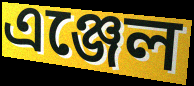
এঞ্জেল